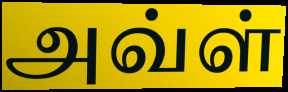
அவ்ள்